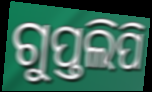
ଗୁପ୍ତଲିପି